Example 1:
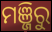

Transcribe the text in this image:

ମଞ୍ଜିରୁ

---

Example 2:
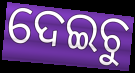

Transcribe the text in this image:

ଦେଇଚୁ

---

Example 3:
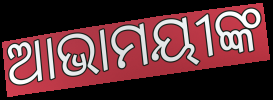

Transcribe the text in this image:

ଆଭାମୟୀଙ୍କ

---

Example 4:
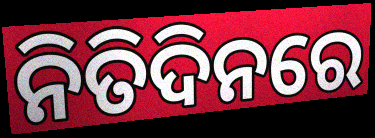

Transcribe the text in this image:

ନିତିଦିନରେ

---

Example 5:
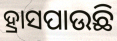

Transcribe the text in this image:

ହ୍ରାସପାଉଛି